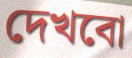
দেখবো